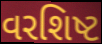
વરશિષ્ટ